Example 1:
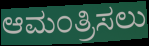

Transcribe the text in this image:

ಆಮಂತ್ರಿಸಲು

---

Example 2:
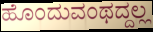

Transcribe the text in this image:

ಹೊಂದುವಂಥದ್ದಲ್ಲ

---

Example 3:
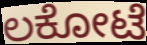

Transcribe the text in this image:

ಲಕೋಟೆ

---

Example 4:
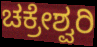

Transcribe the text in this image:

ಚಕ್ರೇಶ್ವರಿ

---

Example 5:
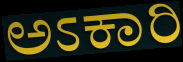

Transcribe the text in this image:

ಅಽಕಾರಿ